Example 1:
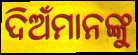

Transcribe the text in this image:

ଦିଅଁମାନଙ୍କୁ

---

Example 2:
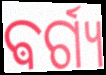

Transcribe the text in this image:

ଵର୍ଗ୍ଯ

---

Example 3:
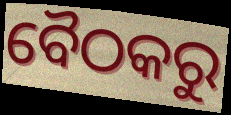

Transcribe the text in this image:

ବୈଠକରୁ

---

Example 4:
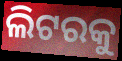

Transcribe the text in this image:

ଲିଟରକୁ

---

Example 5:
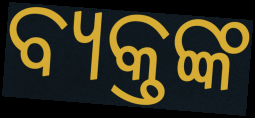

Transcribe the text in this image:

ବ୍ୟକ୍ତଙ୍କ